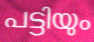
പട്ടിയും